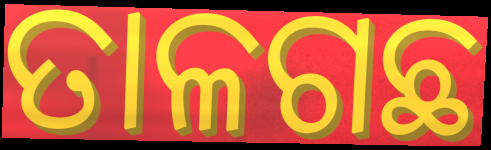
ତାଳଗଛ